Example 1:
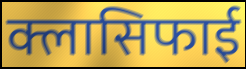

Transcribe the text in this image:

क्लासिफाई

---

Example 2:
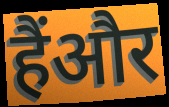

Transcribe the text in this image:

हैंऔर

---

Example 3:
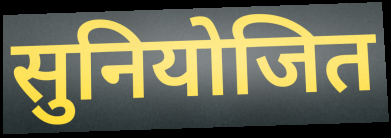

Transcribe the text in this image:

सुनियोजित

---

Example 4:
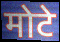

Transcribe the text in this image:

मोटे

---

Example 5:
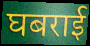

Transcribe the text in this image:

घबराई